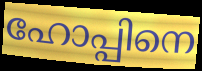
ഹോപ്പിനെ